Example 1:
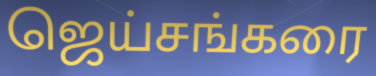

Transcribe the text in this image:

ஜெய்சங்கரை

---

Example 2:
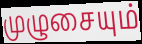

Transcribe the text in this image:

முழுசையும்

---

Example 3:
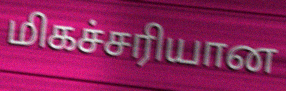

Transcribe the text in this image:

மிகச்சரியான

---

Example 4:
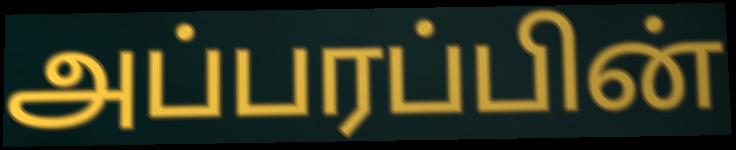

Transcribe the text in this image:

அப்பரப்பின்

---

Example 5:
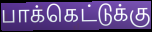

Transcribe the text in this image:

பாக்கெட்டுக்கு